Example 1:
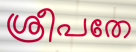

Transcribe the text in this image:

ശ്രീപതേ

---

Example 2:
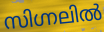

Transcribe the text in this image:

സിഗ്നലിൽ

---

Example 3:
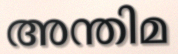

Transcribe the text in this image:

അന്തിമ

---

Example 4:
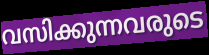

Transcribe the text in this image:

വസിക്കുന്നവരുടെ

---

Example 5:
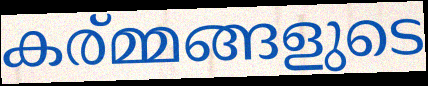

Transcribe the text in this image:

കര്മ്മങ്ങളുടെ